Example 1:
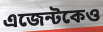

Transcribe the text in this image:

এজেন্টকেও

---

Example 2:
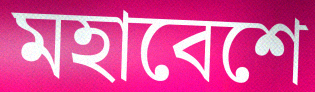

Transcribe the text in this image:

মহাবেশে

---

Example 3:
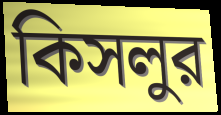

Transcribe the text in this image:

কিসলুর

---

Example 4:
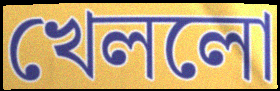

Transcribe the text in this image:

খেললো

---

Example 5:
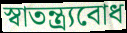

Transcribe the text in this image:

স্বাতন্ত্র্যবোধ